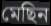
মেছিন